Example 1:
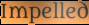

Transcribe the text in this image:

Impelled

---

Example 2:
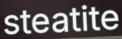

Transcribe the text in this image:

steatite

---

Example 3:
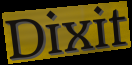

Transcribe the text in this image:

Dixit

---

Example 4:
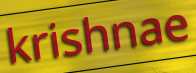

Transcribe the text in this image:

krishnae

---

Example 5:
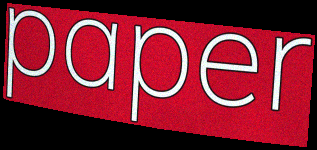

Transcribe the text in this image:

paper